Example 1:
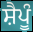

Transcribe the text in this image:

ਸ਼ੈਪੂੰ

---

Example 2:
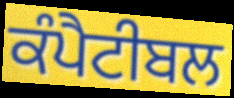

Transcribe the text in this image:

ਕੰਪੈਟੀਬਲ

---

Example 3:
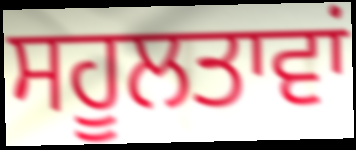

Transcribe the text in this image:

ਸਹੂਲਤਾਵਾਂ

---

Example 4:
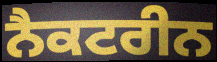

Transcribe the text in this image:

ਨੈਕਟਰੀਨ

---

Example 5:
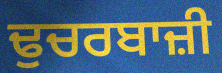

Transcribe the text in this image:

ਢੁਚਰਬਾਜ਼ੀ